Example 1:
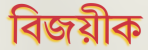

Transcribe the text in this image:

বিজয়ীক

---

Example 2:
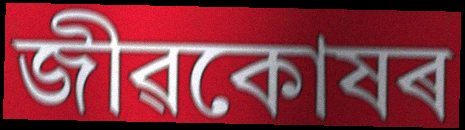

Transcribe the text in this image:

জীৱকোষৰ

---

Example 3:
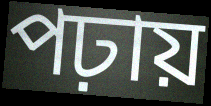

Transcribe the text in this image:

পঢ়ায়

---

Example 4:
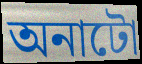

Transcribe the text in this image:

অনাটো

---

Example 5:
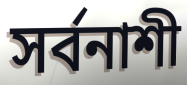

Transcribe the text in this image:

সৰ্বনাশী